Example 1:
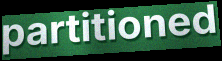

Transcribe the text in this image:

partitioned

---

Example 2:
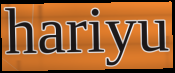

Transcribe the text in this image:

hariyu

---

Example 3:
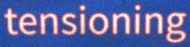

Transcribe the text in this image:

tensioning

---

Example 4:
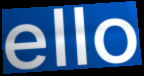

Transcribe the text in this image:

ello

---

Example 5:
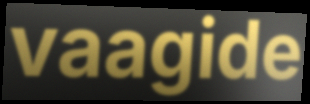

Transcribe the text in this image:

vaagide